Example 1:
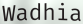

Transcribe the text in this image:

Wadhia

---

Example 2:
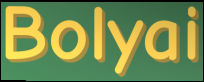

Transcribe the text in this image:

Bolyai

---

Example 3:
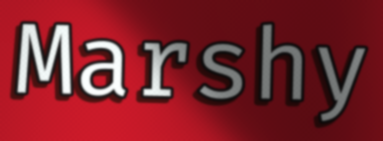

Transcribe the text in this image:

Marshy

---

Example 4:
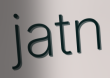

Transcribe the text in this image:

jatn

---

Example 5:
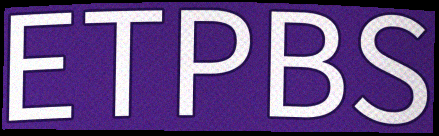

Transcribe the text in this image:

ETPBS